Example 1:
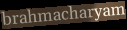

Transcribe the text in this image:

brahmacharyam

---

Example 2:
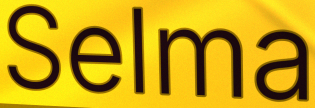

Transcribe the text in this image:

Selma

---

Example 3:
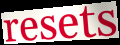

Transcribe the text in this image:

resets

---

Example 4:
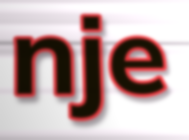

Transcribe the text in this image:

nje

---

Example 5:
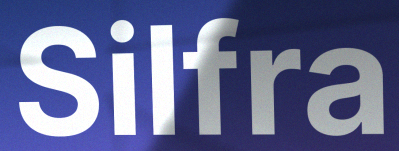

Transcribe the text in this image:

Silfra